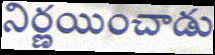
నిర్ణయించాడు